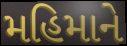
મહિમાને